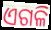
ଏଗଳି